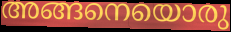
അങ്ങനെയൊരു